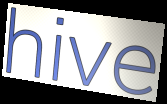
hive